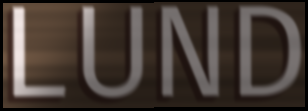
LUND